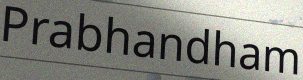
Prabhandham